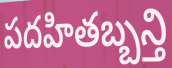
పదహితబ్బన్తి